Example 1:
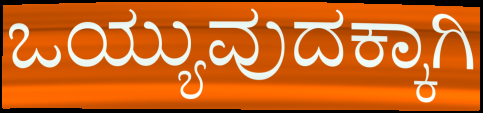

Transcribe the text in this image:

ಒಯ್ಯುವುದಕ್ಕಾಗಿ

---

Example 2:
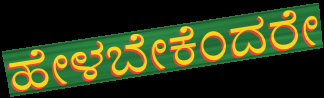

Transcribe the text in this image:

ಹೇಳಬೇಕೆಂದರೇ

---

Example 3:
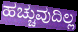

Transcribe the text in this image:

ಹಚ್ಚುವುದಿಲ್ಲ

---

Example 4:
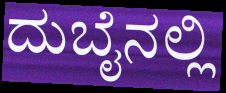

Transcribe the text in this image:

ದುಬೈನಲ್ಲಿ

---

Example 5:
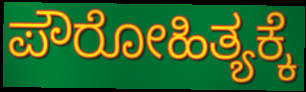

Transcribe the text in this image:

ಪೌರೋಹಿತ್ಯಕ್ಕೆ